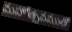
మహోత్సవముతో